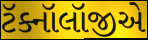
ટૅક્નૉલૉજીએ